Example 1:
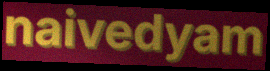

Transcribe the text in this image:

naivedyam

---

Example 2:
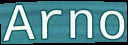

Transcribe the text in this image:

Arno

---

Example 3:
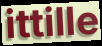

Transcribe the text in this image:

ittille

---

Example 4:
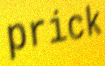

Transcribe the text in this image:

prick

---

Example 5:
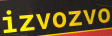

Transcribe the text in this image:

izvozvo